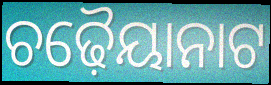
ଚଢ଼ୈୟାନାଟ